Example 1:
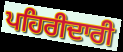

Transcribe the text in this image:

ਪਹਿਰੀਦਾਰੀ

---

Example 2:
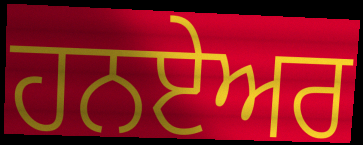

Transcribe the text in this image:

ਹਨਏਅਰ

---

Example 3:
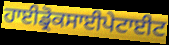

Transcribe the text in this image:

ਹਾਈਡ੍ਰੋਕਸਾਈਪੇਟਾਈਟ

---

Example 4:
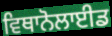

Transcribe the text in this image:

ਵਿਥਾਨੋਲਾਈਡ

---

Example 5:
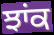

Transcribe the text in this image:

ਝਾਂਕ